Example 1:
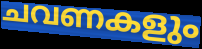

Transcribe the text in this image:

ചവണകളും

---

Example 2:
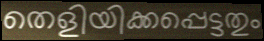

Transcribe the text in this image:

തെളിയിക്കപ്പെട്ടതും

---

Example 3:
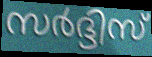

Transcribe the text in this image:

സർദ്ദിസ്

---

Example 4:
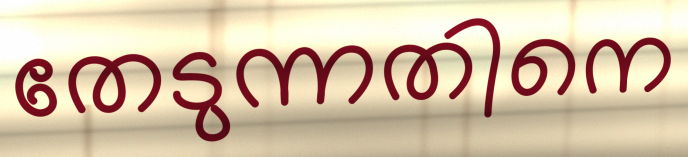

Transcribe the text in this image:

തേടുന്നതിനെ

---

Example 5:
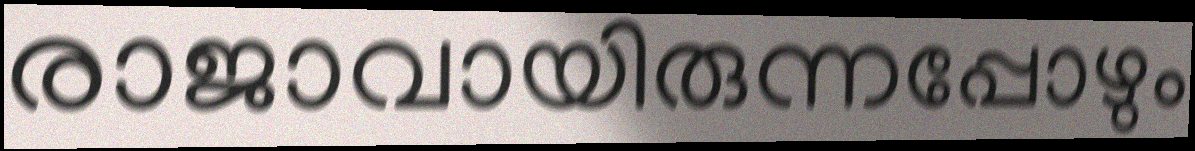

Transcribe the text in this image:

രാജാവായിരുന്നപ്പോഴും